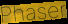
Phaser